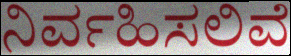
ನಿರ್ವಹಿಸಲಿವೆ